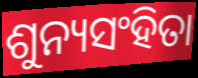
ଶୁନ୍ୟସଂହିତା